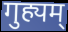
गुह्यम्